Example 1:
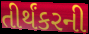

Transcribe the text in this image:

તીર્થંકરની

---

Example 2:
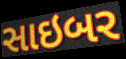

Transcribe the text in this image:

સાઇબર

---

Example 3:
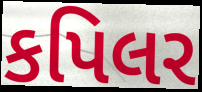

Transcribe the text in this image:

કપિલર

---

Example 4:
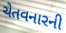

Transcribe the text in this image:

ચેતવનારની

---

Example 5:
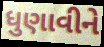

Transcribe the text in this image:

ધુણાવીને